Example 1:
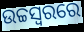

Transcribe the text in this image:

ଉଚ୍ଚସ୍ଵରରେ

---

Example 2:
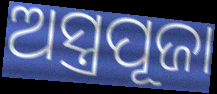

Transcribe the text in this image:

ଅସ୍ତ୍ରପୂଜା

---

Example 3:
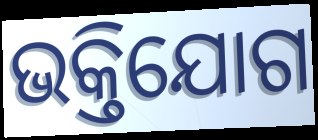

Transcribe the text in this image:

ଭକ୍ତିଯୋଗ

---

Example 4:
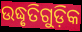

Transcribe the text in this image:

ଉଦ୍ଧୃତିଗୁଡ଼ିକ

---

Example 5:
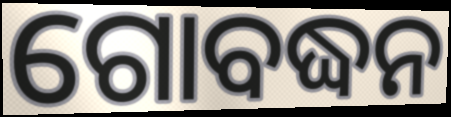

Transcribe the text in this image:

ଗୋବଦ୍ଧନ